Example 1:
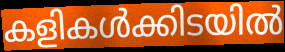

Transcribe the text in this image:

കളികൾക്കിടയിൽ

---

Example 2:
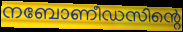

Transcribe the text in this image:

നബോണീഡസിന്റെ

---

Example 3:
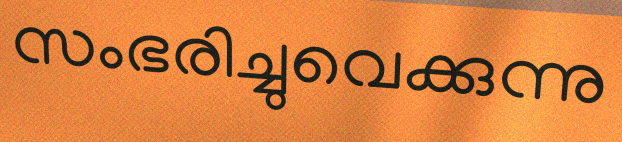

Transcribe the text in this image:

സംഭരിച്ചുവെക്കുന്നു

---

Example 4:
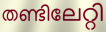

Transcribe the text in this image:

തണ്ടിലേറ്റി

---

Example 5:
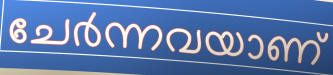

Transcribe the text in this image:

ചേർന്നവയാണ്